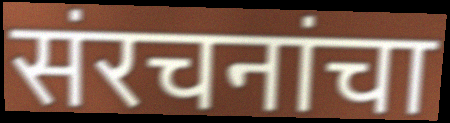
संरचनांचा